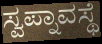
ಸ್ವಪ್ನಾವಸ್ಥೆ